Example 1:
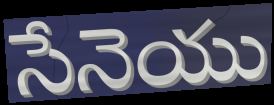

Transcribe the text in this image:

సేనెయు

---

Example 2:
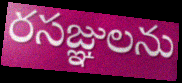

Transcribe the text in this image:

రసజ్ఞులను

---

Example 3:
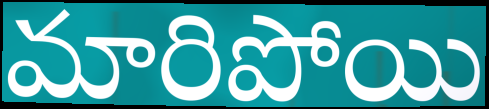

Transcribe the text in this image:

మారిపోయి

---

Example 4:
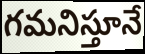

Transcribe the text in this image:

గమనిస్తూనే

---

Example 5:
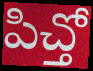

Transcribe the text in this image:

పిచ్తో